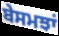
ਬੇਸਮਝਾਂ